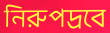
নিরুপদ্রবে